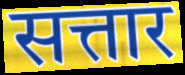
सत्तार